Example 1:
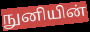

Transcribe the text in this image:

நுனியின்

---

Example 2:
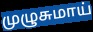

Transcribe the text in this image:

முழுசுமாய்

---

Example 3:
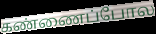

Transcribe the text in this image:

கண்ணைப்போல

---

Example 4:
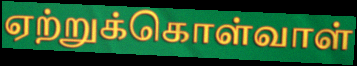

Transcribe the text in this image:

ஏற்றுக்கொள்வாள்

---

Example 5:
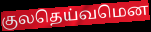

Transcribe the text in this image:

குலதெய்வமென